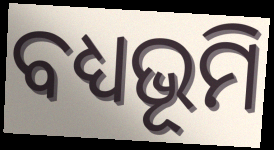
ବଧ୍ୟଭୂମି